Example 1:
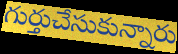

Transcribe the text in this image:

గుర్తుచేసుకున్నారు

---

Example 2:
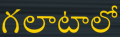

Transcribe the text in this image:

గలాటాలో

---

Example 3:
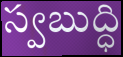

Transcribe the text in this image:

స్వబుద్ధి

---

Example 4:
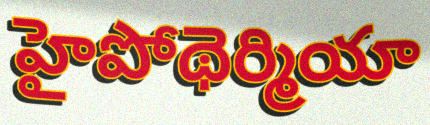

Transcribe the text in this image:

హైపోథెర్మియా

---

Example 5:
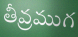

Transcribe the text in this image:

తీవ్రముగ